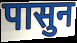
पासुन